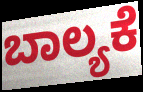
ಬಾಲ್ಯಕೆ